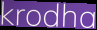
krodha